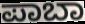
ಪಾಬಾ